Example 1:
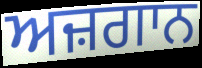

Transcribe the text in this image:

ਅਜ਼ਗਾਨ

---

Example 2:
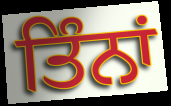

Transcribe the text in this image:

ਤਿੰਨਾਂ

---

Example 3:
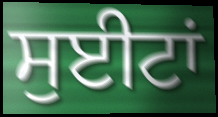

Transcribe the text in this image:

ਸੁਈਟਾਂ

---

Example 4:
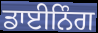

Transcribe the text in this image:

ਡਾਈਨਿੰਗ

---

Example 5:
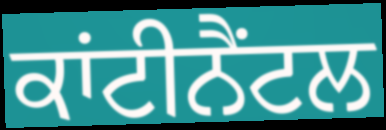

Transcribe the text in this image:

ਕਾਂਟੀਨੈਂਟਲ